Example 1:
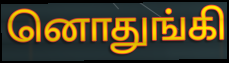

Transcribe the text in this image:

னொதுங்கி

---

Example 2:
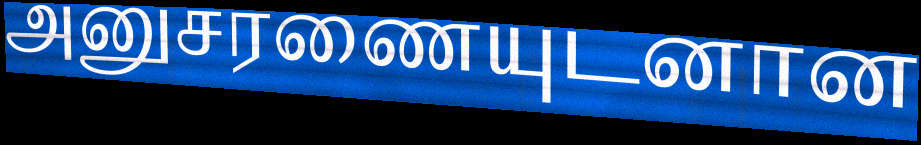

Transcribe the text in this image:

அனுசரணையுடனான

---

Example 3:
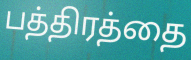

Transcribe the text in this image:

பத்திரத்தை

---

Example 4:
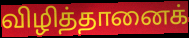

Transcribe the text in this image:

விழித்தானைக்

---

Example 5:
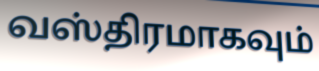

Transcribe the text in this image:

வஸ்திரமாகவும்